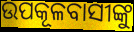
ଉପକୂଳବାସୀଙ୍କୁ